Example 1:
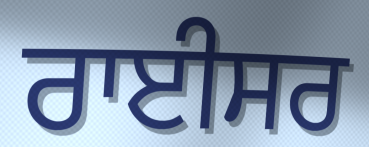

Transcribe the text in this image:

ਰਾਈਸਰ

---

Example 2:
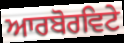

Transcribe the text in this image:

ਆਰਬੋਰਵਿਟੇ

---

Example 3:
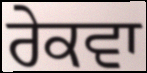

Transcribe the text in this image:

ਰੇਕਵਾ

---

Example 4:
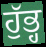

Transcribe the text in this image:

ਹੁੱਭ੍ਹ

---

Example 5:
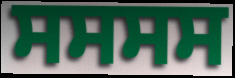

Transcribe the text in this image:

ਸਸਸਸ